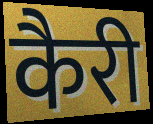
कैरी